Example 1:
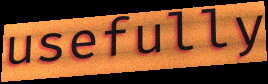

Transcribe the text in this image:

usefully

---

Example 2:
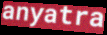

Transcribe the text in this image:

anyatra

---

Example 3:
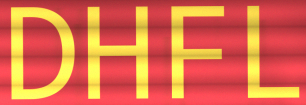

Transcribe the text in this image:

DHFL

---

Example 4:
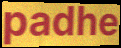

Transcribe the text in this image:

padhe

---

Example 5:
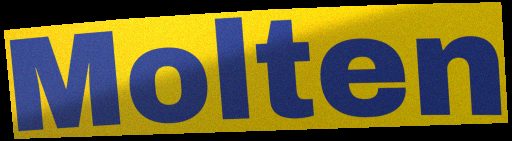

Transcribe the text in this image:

Molten